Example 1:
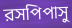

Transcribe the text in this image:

রসপিপাসু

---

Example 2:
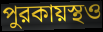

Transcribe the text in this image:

পুরকায়স্থও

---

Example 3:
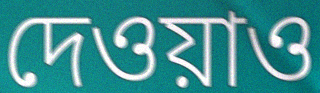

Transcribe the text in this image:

দেওয়াও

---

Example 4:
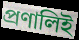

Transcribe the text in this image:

প্রণালিই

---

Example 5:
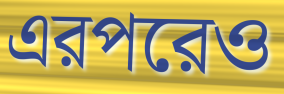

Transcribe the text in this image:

এরপরেও